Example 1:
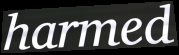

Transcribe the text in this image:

harmed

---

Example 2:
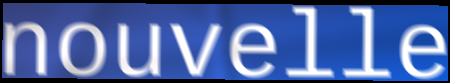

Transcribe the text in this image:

nouvelle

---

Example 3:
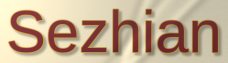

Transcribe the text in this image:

Sezhian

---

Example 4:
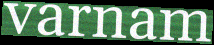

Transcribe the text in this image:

varnam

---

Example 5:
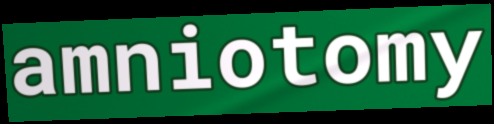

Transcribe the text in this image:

amniotomy